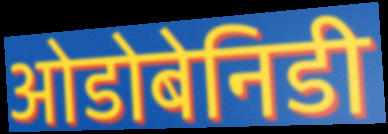
ओडोबेनिडी